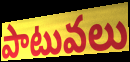
పాటువలు